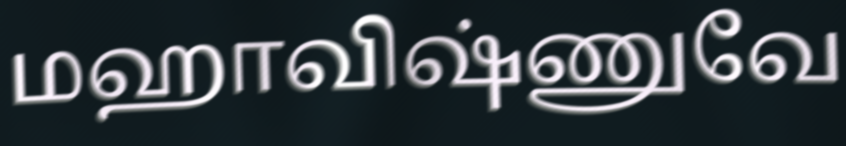
மஹாவிஷ்ணுவே